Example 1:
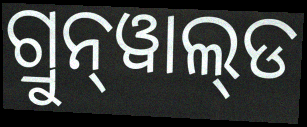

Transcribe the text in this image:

ଗ୍ରୁନ୍‌ୱାଲ୍‌ଡ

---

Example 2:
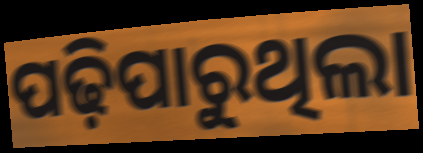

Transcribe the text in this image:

ପଢ଼ିପାରୁଥିଲା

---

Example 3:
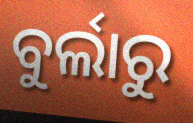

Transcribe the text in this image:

ବୁର୍ଲାରୁ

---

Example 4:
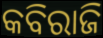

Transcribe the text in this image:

କବିରାଜି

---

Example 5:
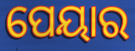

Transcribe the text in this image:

ପେୟାର